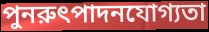
পুনরুৎপাদনযোগ্যতা